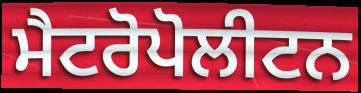
ਮੈਟਰੋਪੋਲੀਟਨ